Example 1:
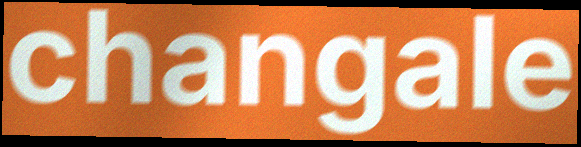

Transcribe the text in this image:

changale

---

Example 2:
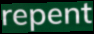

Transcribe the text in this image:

repent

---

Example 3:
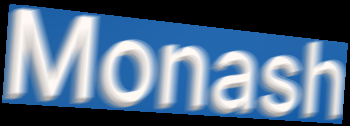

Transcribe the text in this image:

Monash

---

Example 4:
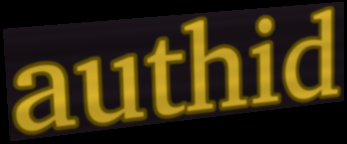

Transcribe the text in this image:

authid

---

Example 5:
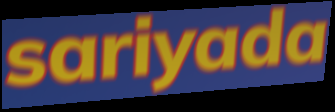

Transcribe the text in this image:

sariyada